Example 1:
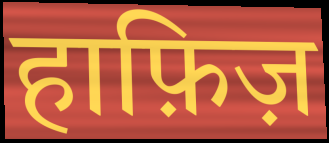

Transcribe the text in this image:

हाफ़िज़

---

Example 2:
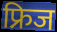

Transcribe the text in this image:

फ्रिज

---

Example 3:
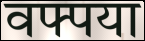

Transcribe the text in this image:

वफ्पया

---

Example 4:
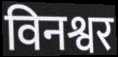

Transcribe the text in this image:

विनश्वर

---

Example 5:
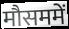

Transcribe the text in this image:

मौसममें